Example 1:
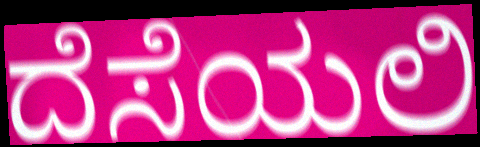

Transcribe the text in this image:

ದೆಸೆಯಲಿ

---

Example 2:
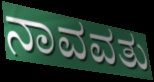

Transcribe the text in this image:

ನಾವವತು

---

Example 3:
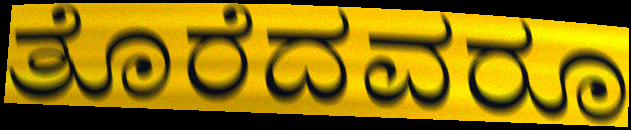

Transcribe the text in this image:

ತೊರೆದವರೂ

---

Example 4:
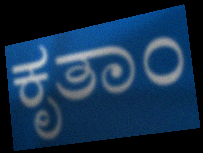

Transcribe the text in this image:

ಕೃತಾಂ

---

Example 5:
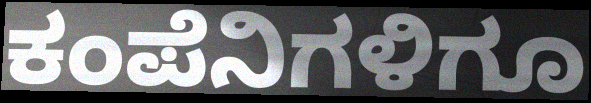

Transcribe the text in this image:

ಕಂಪೆನಿಗಳಿಗೂ